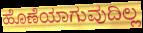
ಹೊಣೆಯಾಗುವುದಿಲ್ಲ